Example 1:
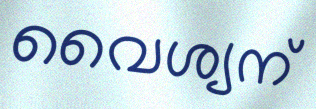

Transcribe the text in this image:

വൈശ്യന്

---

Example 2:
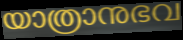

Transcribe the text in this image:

യാത്രാനുഭവ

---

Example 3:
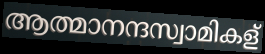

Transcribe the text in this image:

ആത്മാനന്ദസ്വാമികള്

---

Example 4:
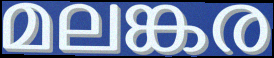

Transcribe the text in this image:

മലങ്കര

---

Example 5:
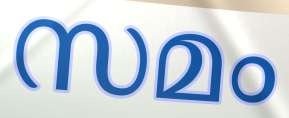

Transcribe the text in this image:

സമം